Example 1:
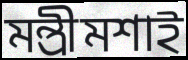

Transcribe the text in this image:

মন্ত্রীমশাই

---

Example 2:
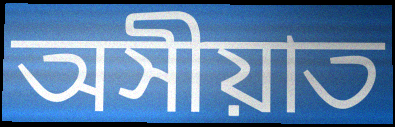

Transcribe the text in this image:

অসীয়াত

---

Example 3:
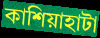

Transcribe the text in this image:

কাশিয়াহাটা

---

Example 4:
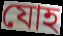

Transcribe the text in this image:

যোহ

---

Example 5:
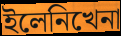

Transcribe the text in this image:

ইলেনিখেনা